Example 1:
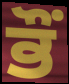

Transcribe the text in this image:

ਭੌਂ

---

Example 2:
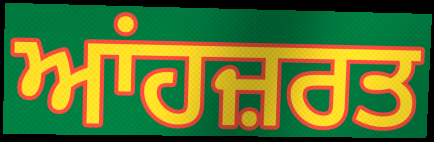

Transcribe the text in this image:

ਆਂਹਜ਼ਰਤ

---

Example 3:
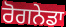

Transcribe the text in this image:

ਰੋਗਨੇਡਾ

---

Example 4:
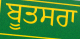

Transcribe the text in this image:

ਬੂਤਸਰਾ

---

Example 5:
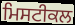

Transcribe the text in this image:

ਮਿਸਟੀਕਲ